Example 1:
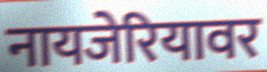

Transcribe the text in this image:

नायजेरियावर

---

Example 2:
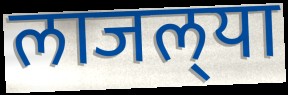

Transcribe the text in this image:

लाजल्या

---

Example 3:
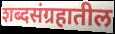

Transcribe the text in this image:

शब्दसंग्रहातील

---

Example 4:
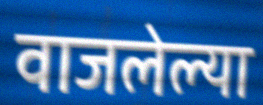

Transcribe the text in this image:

वाजलेल्या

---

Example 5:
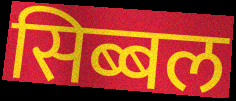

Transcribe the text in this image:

सिब्बल